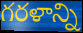
గరళాన్ని